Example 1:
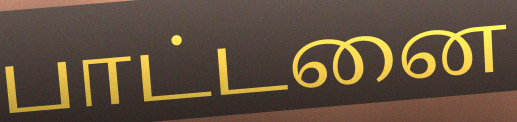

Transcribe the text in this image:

பாட்டனை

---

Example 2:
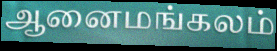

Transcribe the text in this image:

ஆனைமங்கலம்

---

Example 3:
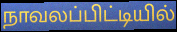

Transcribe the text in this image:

நாவலப்பிட்டியில்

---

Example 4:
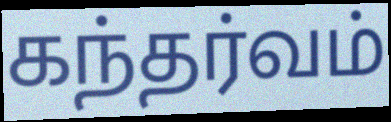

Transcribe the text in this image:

கந்தர்வம்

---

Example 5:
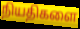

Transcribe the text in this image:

நியதிகளை